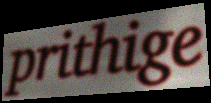
prithige